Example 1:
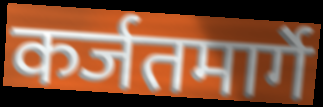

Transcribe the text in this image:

कर्जतमार्गे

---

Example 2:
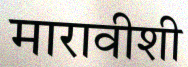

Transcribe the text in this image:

मारावीशी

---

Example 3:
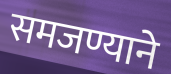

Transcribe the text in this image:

समजण्याने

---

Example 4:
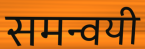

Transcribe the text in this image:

समन्वयी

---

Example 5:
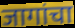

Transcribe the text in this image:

जागांचा